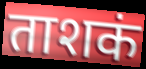
ताशकं